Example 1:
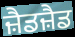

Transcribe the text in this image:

ਜ਼ੈਡਜ਼ੈਡ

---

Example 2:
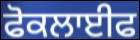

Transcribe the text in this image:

ਫੋਕਲਾਈਫ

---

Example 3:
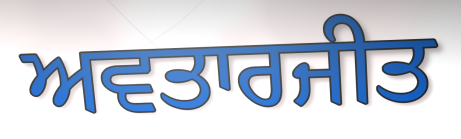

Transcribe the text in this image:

ਅਵਤਾਰਜੀਤ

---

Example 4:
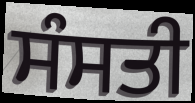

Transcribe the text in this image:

ਸੰਸਤੀ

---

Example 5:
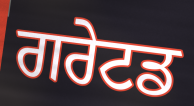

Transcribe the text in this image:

ਗਰੇਟਡ